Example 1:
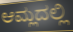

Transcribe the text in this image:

ಆಮ್ಲದಲ್ಲಿ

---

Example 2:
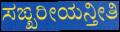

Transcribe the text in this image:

ಸಙ್ಖರೀಯನ್ತೀತಿ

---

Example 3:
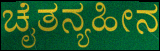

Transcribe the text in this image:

ಚೈತನ್ಯಹೀನ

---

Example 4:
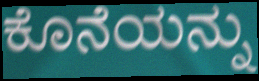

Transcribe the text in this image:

ಕೊನೆಯನ್ನು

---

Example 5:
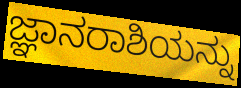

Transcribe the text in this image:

ಜ್ಞಾನರಾಶಿಯನ್ನು